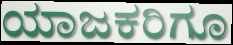
ಯಾಜಕರಿಗೂ